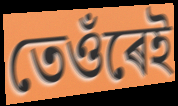
তেওঁৰেই